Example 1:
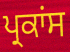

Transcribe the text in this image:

ਪ੍ਰਕਾਂਸ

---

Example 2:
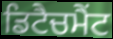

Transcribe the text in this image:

ਡਿਟੈਚਮੈਂਟ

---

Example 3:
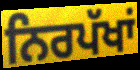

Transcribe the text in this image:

ਨਿਰਪੱਖਾਂ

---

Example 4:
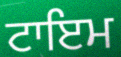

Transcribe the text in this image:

ਟਾਇਮ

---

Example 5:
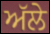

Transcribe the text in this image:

ਅੱਲੇ